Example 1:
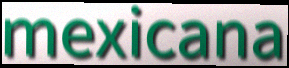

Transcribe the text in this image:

mexicana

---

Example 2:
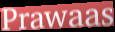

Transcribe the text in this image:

Prawaas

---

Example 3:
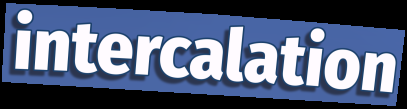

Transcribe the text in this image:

intercalation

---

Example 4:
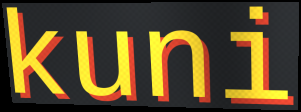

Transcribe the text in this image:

kuni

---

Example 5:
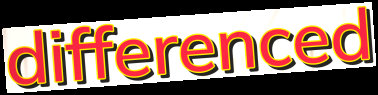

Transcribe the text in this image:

differenced